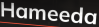
Hameeda